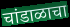
चांडाळाचा